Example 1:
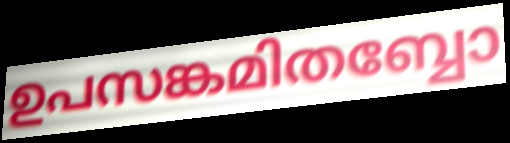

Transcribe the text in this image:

ഉപസങ്കമിതബ്ബോ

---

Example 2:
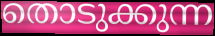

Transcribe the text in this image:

തൊടുക്കുന്ന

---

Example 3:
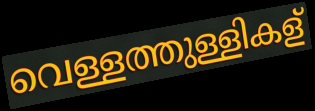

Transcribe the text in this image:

വെള്ളത്തുള്ളികള്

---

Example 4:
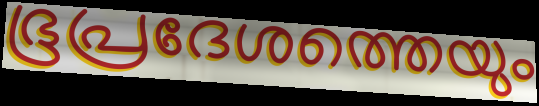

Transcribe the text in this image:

ഭൂപ്രദേശത്തെയും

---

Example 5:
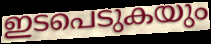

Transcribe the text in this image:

ഇടപെടുകയും